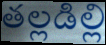
తల్లడిల్లి